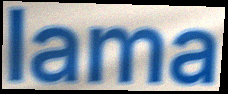
lama